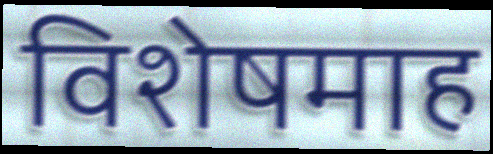
विशेषमाह